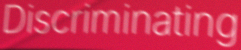
Discriminating